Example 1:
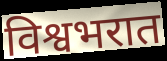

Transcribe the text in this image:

विश्वभरात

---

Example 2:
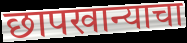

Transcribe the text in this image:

छापखान्याचा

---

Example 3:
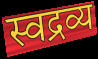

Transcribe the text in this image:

स्वद्रव्य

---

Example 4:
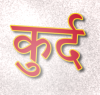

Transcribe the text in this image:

कुर्द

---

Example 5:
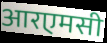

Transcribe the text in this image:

आरएमसी